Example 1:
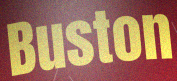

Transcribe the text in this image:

Buston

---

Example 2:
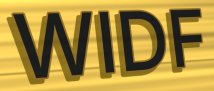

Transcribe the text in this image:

WIDF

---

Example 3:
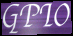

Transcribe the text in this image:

GPIO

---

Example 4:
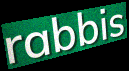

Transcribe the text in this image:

rabbis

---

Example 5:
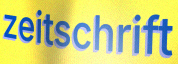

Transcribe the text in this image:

zeitschrift